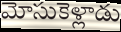
మోసుకెళ్లాడు